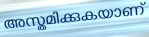
അസ്തമിക്കുകയാണ്